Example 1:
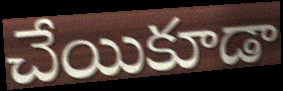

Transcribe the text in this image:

చేయికూడా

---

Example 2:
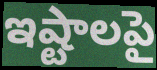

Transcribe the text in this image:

ఇష్టాలపై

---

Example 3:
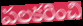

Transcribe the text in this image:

పలకరించి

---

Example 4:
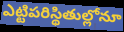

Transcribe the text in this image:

ఎట్టిపరిస్థితుల్లోనూ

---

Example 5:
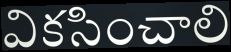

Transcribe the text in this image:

వికసించాలి